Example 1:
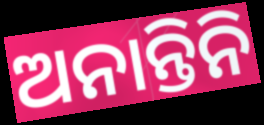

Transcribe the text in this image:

ଅନାନ୍ତିନି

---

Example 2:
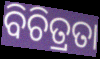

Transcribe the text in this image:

ବିଚିତ୍ରତା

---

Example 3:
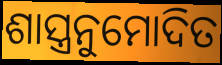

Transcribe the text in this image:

ଶାସ୍ତ୍ରନୁମୋଦିତ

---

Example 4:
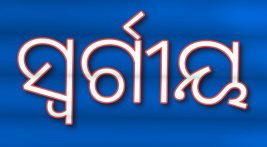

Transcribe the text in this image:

ସ୍ୱର୍ଗୀୟ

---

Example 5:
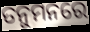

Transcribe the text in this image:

ତନୁମନରେ